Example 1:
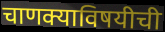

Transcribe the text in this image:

चाणक्याविषयीची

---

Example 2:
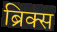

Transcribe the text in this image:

ब्रिक्स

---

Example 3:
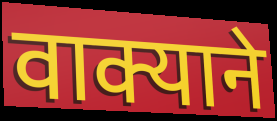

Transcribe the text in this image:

वाक्याने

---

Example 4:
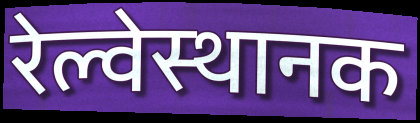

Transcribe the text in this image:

रेल्वेस्थानक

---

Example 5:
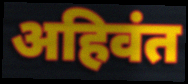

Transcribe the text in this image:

अहिवंत